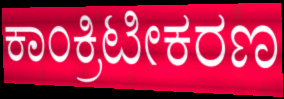
ಕಾಂಕ್ರಿಟೀಕರಣ